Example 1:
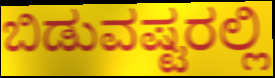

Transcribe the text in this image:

ಬಿಡುವಷ್ಟರಲ್ಲಿ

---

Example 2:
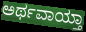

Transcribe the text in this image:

ಅರ್ಥವಾಯ್ತಾ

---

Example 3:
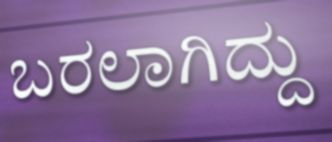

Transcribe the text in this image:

ಬರಲಾಗಿದ್ದು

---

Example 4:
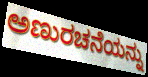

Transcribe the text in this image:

ಅಣುರಚನೆಯನ್ನು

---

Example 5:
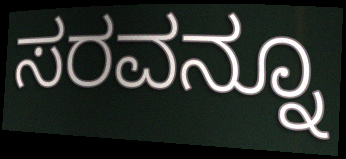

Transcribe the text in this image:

ಸರವನ್ನೂ